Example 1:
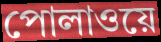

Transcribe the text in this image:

পোলাওয়ে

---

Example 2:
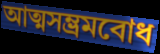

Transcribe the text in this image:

আত্মসম্ভ্রমবোধ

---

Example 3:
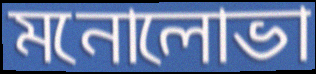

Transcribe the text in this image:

মনোলোভা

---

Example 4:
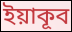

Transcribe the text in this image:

ইয়াকূব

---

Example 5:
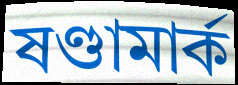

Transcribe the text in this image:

ষণ্ডামার্ক